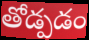
తోడ్పడం